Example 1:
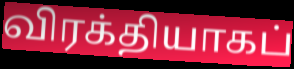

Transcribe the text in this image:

விரக்தியாகப்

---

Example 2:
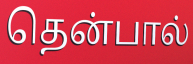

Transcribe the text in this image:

தென்பால்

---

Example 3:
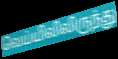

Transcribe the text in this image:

வெய்யிலிலிருந்து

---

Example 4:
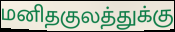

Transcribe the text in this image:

மனிதகுலத்துக்கு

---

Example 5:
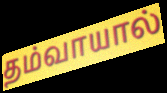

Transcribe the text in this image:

தம்வாயால்